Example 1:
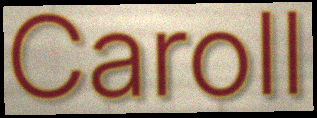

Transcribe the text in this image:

Caroll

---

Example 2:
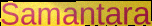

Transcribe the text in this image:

Samantara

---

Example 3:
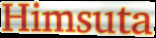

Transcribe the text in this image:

Himsuta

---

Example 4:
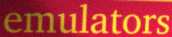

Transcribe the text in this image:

emulators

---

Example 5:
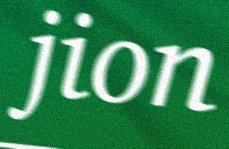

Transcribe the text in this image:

jion